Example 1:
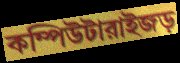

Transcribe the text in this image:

কম্পিউটারাইজড়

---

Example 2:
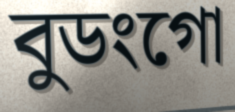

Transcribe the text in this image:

বুডংগো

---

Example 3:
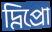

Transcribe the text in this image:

দ্নিপ্রো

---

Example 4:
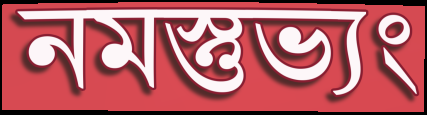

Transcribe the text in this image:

নমস্তুভ্যং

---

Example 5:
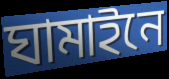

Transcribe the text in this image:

ঘামাইনে